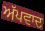
ਅੱਪਵਾਦ